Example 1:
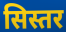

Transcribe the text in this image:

सिस्तर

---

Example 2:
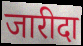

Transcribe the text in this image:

जारीदा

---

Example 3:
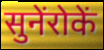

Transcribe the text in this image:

सुनेंरोकें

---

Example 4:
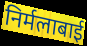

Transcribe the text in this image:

निर्मलाबाई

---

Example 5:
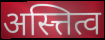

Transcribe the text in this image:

अस्त्तित्व